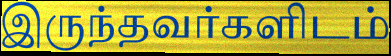
இருந்தவர்களிடம்